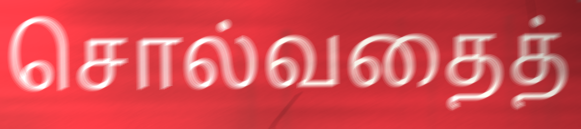
சொல்வதைத்